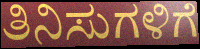
ತಿನಿಸುಗಳಿಗೆ